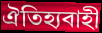
ঐতিহ্যবাহী